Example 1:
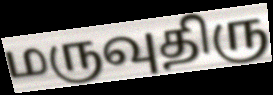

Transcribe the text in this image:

மருவுதிரு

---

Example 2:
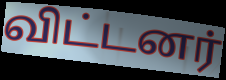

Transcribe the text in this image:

விட்டனர்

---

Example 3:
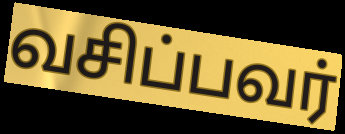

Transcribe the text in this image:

வசிப்பவர்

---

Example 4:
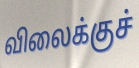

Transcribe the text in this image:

விலைக்குச்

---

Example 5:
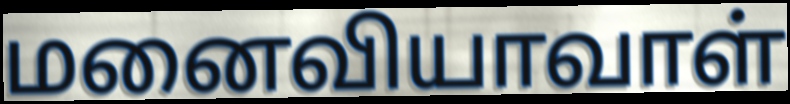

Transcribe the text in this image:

மனைவியாவாள்